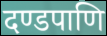
दण्डपाणि